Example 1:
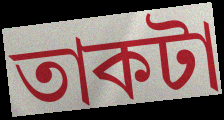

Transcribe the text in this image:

তাকটা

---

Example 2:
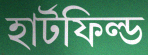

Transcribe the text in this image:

হার্টফিল্ড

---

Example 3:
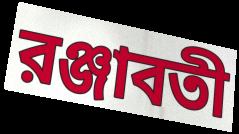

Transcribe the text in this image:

রঞ্জাবতী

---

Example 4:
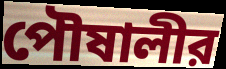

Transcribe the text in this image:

পৌষালীর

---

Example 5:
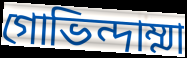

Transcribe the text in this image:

গোভিন্দাম্মা